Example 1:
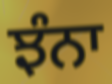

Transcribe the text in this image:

ਝੰਨਾ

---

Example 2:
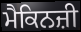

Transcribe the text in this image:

ਮੈਕਿਨਜ਼ੀ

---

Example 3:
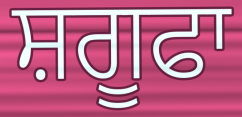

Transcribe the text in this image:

ਸ਼ਗੂਫਾ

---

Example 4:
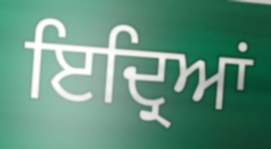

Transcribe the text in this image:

ਇਦ੍ਰਿਆਂ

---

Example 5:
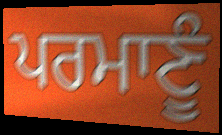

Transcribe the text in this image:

ਪਰਮਾਣੂੰ